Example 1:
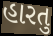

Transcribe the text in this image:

હારતુ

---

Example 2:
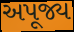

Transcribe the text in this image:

અપૂજ્ય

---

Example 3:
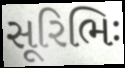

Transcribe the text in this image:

સૂરિભિઃ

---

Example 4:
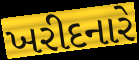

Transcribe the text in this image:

ખરીદનારે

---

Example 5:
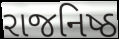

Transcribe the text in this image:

રાજનિષ્ઠ